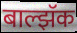
बाल्झॅक